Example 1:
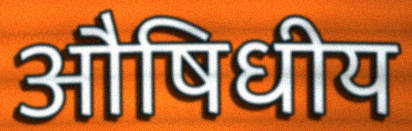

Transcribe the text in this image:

औषिधीय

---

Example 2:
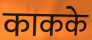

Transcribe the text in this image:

काकके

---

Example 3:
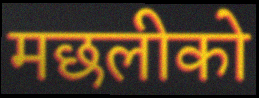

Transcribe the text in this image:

मछलीको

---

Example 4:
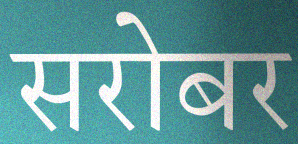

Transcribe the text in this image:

सरोबर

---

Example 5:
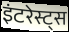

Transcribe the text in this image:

इंटरेस्ट्स